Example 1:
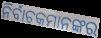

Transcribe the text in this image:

ନିର୍ବାଚକମାନଙ୍କର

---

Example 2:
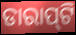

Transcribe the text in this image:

ଡାରାପ୍‌ଟି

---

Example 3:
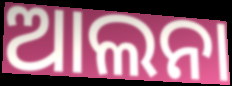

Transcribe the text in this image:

ଆଲନା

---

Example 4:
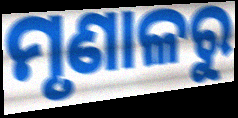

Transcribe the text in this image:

ମୃଣାଳରୁ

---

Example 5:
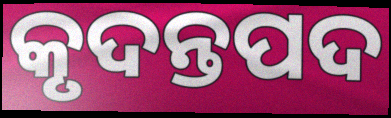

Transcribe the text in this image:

କୃଦନ୍ତପଦ